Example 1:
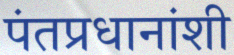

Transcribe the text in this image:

पंतप्रधानांशी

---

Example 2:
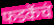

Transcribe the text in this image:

फडकेंचं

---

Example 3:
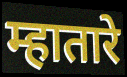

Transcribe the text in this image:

म्हातारे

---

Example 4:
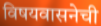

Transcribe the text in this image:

विषयवासनेची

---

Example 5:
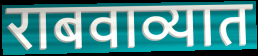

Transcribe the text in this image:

राबवाव्यात